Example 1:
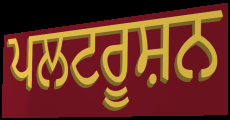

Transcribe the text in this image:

ਪਲਟਰੂਸ਼ਨ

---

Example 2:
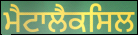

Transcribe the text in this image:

ਮੈਟਾਲੈਕਸਿਲ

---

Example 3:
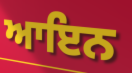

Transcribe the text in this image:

ਆਇਨ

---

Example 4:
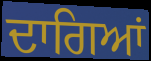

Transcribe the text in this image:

ਦਾਗਿਆਂ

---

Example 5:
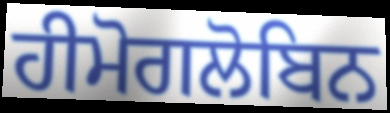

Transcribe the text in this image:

ਹੀਮੋਗਲੋਬਿਨ